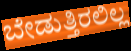
ಬೇಡುತ್ತಿರಲಿಲ್ಲ